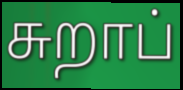
சுறாப்